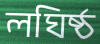
লঘিষ্ঠ